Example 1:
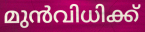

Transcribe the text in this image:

മുൻവിധിക്ക്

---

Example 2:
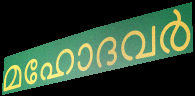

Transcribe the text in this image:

മഹോദവർ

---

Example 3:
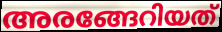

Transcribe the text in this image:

അരങ്ങേറിയത്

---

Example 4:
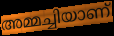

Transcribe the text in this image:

അമ്മച്ചിയാണ്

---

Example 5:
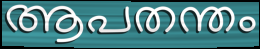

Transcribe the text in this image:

ആപതന്തം